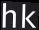
hk